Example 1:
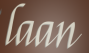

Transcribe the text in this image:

laan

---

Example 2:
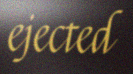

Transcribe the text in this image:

ejected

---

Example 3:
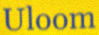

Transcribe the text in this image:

Uloom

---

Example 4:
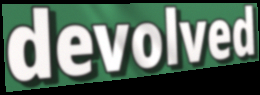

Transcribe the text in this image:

devolved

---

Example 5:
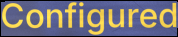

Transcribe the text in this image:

Configured